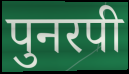
पुनरपी